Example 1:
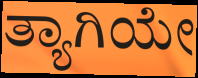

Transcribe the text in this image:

ತ್ಯಾಗಿಯೇ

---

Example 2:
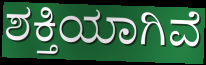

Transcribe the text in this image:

ಶಕ್ತಿಯಾಗಿವೆ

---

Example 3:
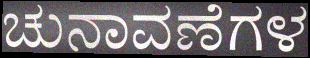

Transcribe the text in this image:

ಚುನಾವಣೆಗಳ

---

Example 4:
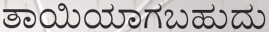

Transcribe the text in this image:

ತಾಯಿಯಾಗಬಹುದು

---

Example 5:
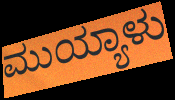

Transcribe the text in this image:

ಮುಯ್ಯಾಳು